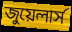
জুয়েলার্স